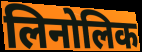
लिनोलिक